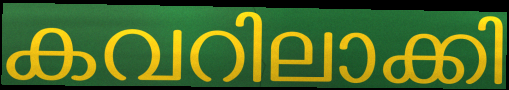
കവറിലാക്കി